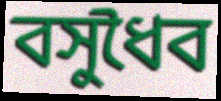
বসুধৈব